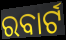
ରବାର୍ଟ